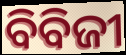
ବିବିଜୀ